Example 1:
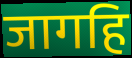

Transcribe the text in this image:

जागहि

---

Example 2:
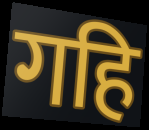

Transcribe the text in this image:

गहि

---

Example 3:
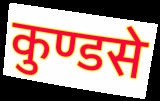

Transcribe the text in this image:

कुण्डसे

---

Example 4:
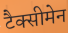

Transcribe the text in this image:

टैक्सीमेन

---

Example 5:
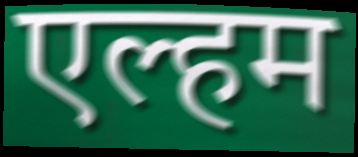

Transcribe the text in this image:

एल्हम